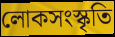
লোকসংস্কৃতি